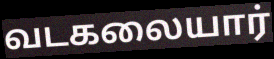
வடகலையார்